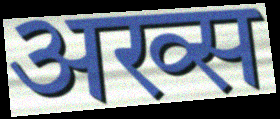
अख्स